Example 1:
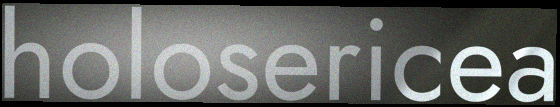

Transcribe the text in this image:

holosericea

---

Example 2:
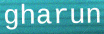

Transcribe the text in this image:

gharun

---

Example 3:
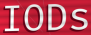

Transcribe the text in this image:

IODs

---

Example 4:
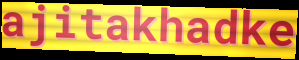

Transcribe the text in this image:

ajitakhadke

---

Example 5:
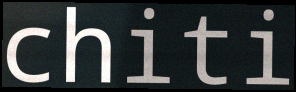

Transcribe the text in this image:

chiti